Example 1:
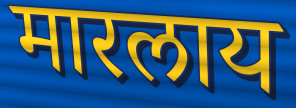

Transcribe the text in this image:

मारलाय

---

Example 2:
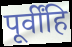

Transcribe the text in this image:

पूर्वींहि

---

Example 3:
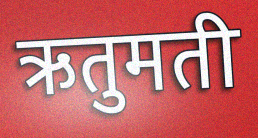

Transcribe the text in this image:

ऋतुमती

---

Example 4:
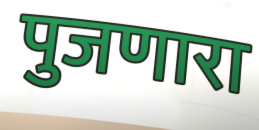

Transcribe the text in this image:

पुजणारा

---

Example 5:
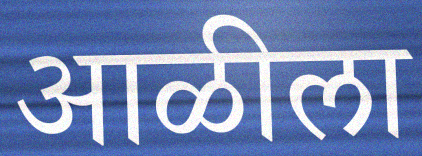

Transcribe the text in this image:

आळीला